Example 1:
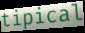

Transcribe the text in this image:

tipical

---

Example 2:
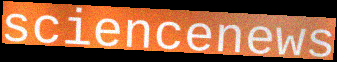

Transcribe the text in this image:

sciencenews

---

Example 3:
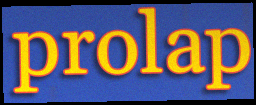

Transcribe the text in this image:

prolap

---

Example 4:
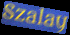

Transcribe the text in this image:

Szalay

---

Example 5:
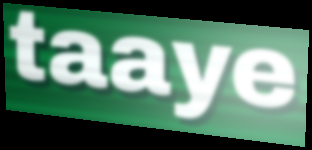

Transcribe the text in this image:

taaye